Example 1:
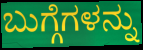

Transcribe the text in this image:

ಬುಗ್ಗೆಗಳನ್ನು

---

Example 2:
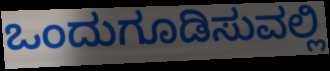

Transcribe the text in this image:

ಒಂದುಗೂಡಿಸುವಲ್ಲಿ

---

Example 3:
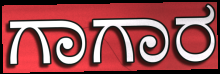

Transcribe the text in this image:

ಗಾಗಾರ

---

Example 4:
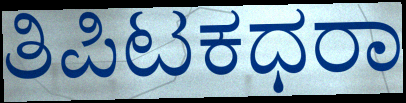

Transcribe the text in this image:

ತಿಪಿಟಕಧರಾ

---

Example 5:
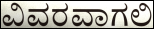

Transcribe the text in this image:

ವಿವರವಾಗಲಿ